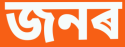
জনৰ